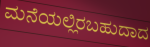
ಮನೆಯಲ್ಲಿರಬಹುದಾದ